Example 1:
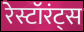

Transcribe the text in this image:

रेस्टॉरंट्स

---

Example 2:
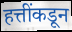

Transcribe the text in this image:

हत्तींकडून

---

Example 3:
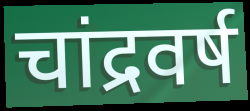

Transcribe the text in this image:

चांद्रवर्ष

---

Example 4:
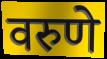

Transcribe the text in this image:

वरुणे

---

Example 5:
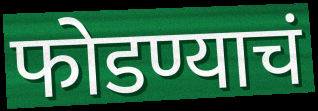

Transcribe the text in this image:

फोडण्याचं